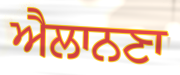
ਐਲਾਨਣਾ